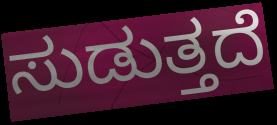
ಸುಡುತ್ತದೆ